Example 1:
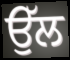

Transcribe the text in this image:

ਉੱਲ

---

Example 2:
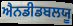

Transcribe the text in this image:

ਐਨਡੀਡਬਲਯੂ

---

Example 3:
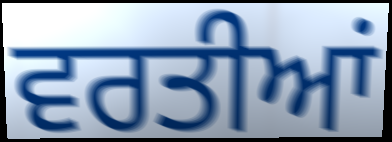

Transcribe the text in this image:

ਵਰਤੀਆਂ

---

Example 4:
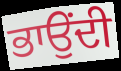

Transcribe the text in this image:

ਭਾਉਂਦੀ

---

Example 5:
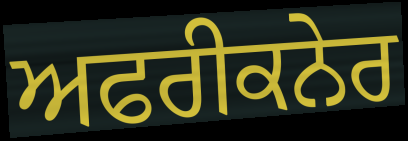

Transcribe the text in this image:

ਅਫਰੀਕਨੇਰ